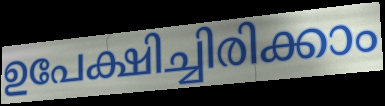
ഉപേക്ഷിച്ചിരിക്കാം